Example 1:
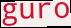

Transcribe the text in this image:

guro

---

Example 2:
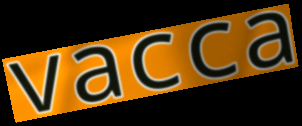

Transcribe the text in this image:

vacca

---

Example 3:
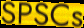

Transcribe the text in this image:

SPSCs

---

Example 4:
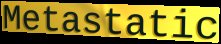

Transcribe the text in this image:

Metastatic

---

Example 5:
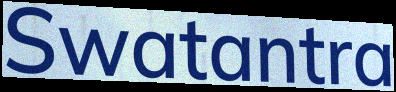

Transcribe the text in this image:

Swatantra